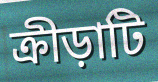
ক্রীড়াটি